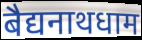
बैद्यनाथधाम